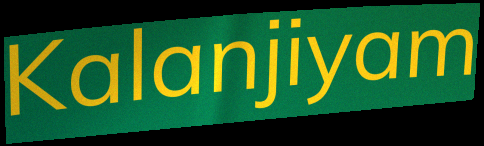
Kalanjiyam